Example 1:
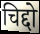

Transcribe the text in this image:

चिद्दो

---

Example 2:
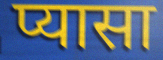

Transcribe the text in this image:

प्यासा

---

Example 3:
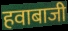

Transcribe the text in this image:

हवाबाजी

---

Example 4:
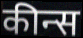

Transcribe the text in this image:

कीन्स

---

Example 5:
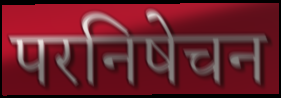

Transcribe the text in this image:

परनिषेचन